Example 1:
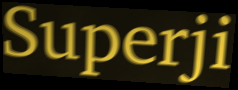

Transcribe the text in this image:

Superji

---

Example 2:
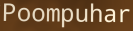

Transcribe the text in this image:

Poompuhar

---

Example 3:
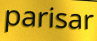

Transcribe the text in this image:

parisar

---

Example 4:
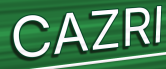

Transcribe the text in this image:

CAZRI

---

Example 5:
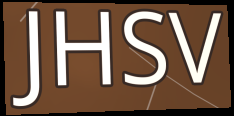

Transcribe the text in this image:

JHSV